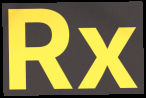
Rx